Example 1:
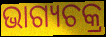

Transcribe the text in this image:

ଭାଗ୍ୟଚକ୍ର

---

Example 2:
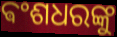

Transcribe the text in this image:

ଵଂଶଧରଙ୍କୁ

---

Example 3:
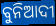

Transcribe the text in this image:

ବୁନିଆଦୀ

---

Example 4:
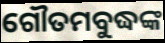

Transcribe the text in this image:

ଗୌତମବୁଦ୍ଧଙ୍କ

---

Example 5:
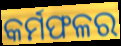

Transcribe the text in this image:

କର୍ମଫଳର